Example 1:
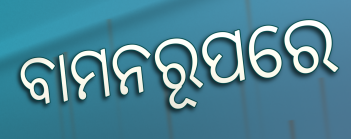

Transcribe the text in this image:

ବାମନରୂପରେ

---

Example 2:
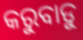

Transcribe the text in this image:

କରୁବାଡୁ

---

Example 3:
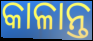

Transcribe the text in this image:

କାଳାନ୍ତ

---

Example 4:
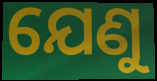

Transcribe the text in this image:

ଯେଣୁ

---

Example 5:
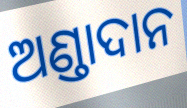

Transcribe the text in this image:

ଅଣ୍ଡାଦାନ